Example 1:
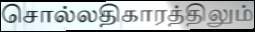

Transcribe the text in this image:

சொல்லதிகாரத்திலும்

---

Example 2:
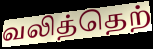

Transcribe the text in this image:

வலித்தெற்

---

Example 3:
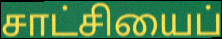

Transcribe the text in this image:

சாட்சியைப்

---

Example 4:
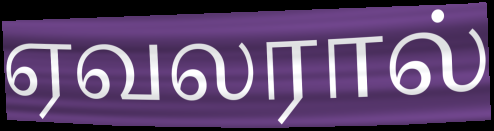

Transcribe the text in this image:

ஏவலரால்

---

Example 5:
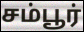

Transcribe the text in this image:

சம்பூர்